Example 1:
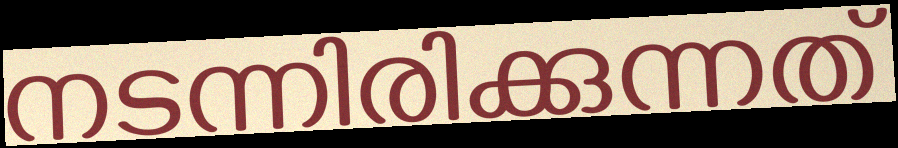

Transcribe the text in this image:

നടന്നിരിക്കുന്നത്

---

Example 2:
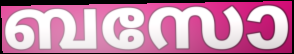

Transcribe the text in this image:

ബസോ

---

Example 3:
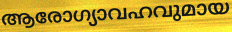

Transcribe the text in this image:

ആരോഗ്യാവഹവുമായ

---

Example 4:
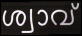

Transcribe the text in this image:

ശ്വാവ്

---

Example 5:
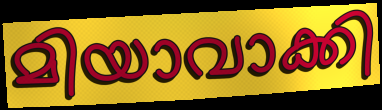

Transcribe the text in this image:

മിയാവാക്കി